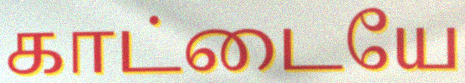
காட்டையே